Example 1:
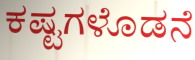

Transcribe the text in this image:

ಕಷ್ಟಗಳೊಡನೆ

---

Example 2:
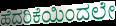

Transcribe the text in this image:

ಹೆದರಿಕೆಯಿಂದಲೇ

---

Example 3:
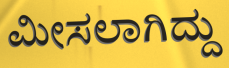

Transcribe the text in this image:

ಮೀಸಲಾಗಿದ್ದು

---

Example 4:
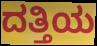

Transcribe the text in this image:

ದತ್ತಿಯ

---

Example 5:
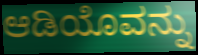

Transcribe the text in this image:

ಆಡಿಯೊವನ್ನು